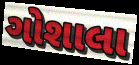
ગોશાલા